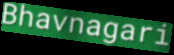
Bhavnagari